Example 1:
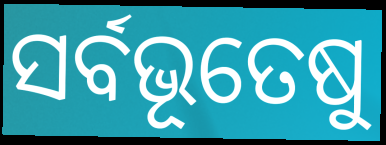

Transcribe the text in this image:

ସର୍ବଭୂତେଷୁ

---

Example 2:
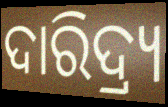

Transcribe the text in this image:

ଦାରିଦ୍ର୍ୟ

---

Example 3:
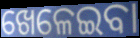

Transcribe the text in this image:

ଖେଳେଇବା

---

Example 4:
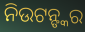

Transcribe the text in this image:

ନିଉଟନ୍ଙ୍କର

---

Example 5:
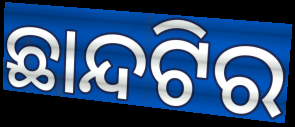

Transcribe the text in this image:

ଛାନ୍ଦଟିର